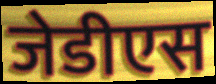
जेडीएस